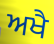
ਅਖੈ